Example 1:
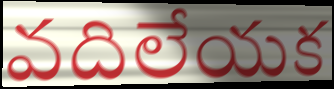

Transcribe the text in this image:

వదిలేయక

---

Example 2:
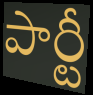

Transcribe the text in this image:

పార్టీ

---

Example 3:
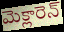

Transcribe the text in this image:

మెక్లారెన్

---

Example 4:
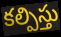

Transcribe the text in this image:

కల్పిస్తు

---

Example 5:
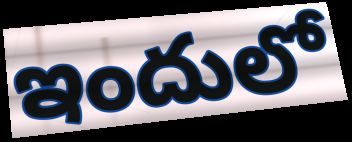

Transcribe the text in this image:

ఇందులో